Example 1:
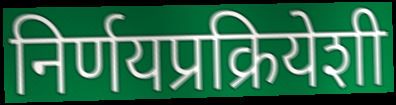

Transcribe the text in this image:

निर्णयप्रक्रियेशी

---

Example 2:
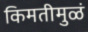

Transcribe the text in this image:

किमतीमुळं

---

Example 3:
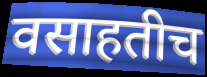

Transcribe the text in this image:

वसाहतीच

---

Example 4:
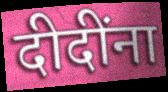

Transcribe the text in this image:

दीदींना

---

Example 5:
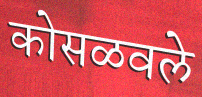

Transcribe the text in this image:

कोसळवले